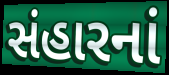
સંહારનાં